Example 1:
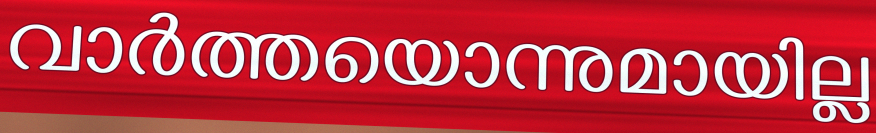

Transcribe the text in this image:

വാർത്തയൊന്നുമായില്ല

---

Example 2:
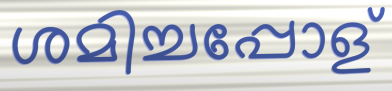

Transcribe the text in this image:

ശമിച്ചപ്പോള്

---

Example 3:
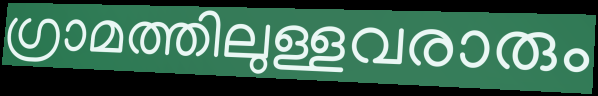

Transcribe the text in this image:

ഗ്രാമത്തിലുള്ളവരാരും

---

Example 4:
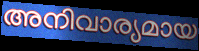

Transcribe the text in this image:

അനിവാര്യമായ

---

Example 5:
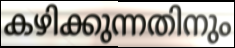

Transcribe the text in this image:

കഴിക്കുന്നതിനും